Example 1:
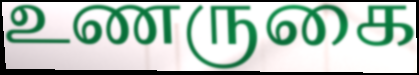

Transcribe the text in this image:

உணருகை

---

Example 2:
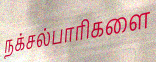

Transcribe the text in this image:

நக்சல்பாரிகளை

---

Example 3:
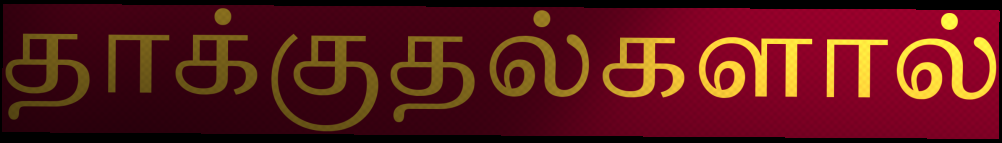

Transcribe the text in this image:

தாக்குதல்களால்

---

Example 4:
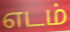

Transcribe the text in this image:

எடம்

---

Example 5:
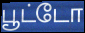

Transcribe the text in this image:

பூட்டோ